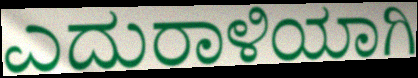
ಎದುರಾಳಿಯಾಗಿ